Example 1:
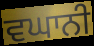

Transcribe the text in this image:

ਵਘਾਨੀ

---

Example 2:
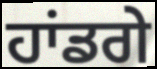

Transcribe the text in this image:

ਹਾਂਡਗੇ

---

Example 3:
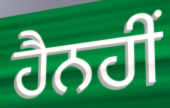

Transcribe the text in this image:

ਹੈਨਹੀਂ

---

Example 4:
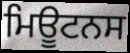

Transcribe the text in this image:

ਮਿਊਟਨਸ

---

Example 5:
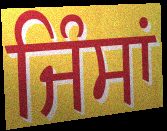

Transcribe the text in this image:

ਜਿੰਸਾਂ